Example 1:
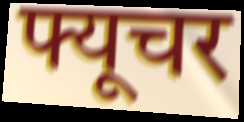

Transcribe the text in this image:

फ्यूचर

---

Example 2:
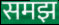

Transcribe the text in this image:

समझ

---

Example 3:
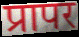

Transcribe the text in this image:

प्रापर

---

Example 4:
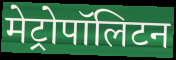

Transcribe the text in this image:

मेट्रोपॉलिटन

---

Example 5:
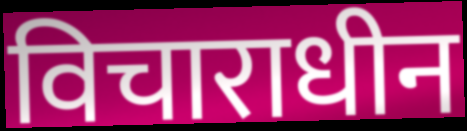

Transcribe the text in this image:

विचाराधीन